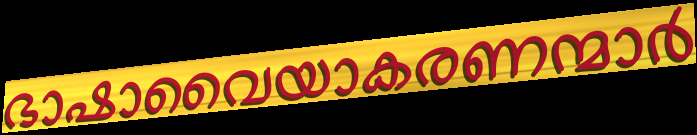
ഭാഷാവൈയാകരണന്മാർ